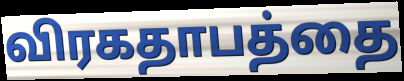
விரகதாபத்தை